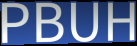
PBUH